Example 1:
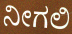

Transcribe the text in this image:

ನೀಗಲಿ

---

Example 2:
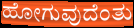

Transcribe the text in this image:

ಹೋಗುವುದೆಂತು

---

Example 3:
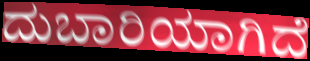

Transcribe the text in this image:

ದುಬಾರಿಯಾಗಿದೆ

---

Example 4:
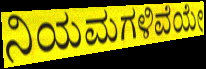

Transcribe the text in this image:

ನಿಯಮಗಳಿವೆಯೇ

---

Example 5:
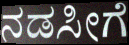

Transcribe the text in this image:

ನಡಸೀಗೆ